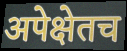
अपेक्षेतच